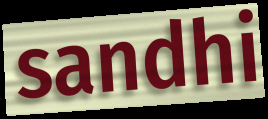
sandhi